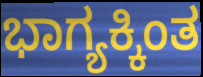
ಭಾಗ್ಯಕ್ಕಿಂತ